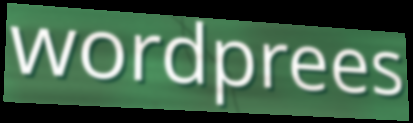
wordprees